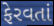
ફેરવતાં